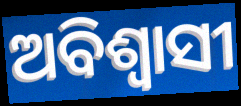
ଅବିଶ୍ଵାସୀ